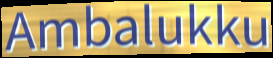
Ambalukku